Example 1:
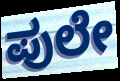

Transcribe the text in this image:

ಪುಲೇ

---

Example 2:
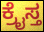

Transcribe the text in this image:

ಕ್ರೈಸ್ತ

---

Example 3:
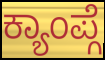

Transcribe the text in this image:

ಕ್ಯಾಂಪ್ಗೆ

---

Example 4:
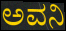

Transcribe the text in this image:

ಅವನಿ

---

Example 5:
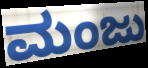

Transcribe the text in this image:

ಮಂಜು